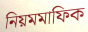
নিয়মমাফিক